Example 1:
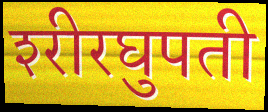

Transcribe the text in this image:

श्रीरघुपती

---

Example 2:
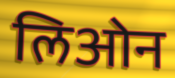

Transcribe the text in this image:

लिओन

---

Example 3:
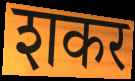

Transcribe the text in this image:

शकर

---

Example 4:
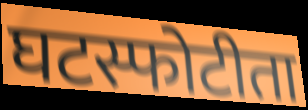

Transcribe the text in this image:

घटस्फोटीता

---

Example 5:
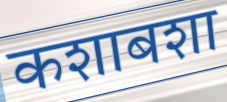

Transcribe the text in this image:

कशाबशा